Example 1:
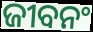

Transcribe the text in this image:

ଜୀବନଂ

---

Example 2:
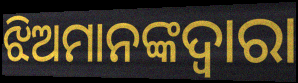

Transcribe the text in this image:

ଝିଅମାନଙ୍କଦ୍ଵାରା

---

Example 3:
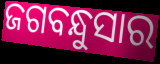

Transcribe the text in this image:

ଜଗବନ୍ଧୁସାର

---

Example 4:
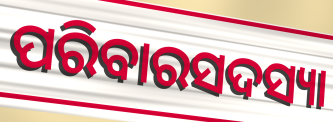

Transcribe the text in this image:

ପରିବାରସଦସ୍ୟା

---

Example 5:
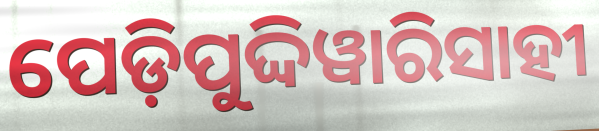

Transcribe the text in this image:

ପେଡ଼ିପୁଦ୍ଦିୱାରିସାହୀ